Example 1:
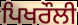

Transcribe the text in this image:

ਪਿਖਰੌਲੀ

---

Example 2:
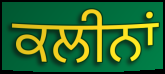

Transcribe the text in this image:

ਕਲੀਨਾਂ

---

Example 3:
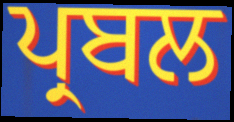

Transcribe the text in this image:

ਪ੍ਰਬਲ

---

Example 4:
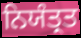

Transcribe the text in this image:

ਨਿਯੰਤ੍ਰਤ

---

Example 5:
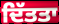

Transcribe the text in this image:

ਦਿੱਤਤਾ